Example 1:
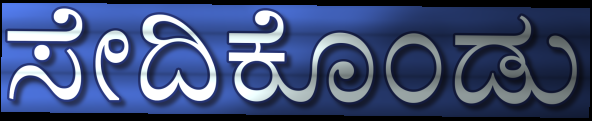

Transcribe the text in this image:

ಸೇದಿಕೊಂಡು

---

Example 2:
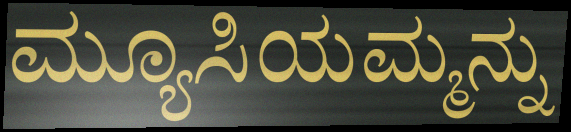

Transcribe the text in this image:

ಮ್ಯೂಸಿಯಮ್ಮನ್ನು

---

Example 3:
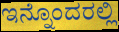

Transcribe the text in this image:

ಇನ್ನೊಂದರಲ್ಲಿ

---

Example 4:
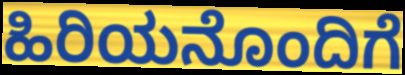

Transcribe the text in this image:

ಹಿರಿಯನೊಂದಿಗೆ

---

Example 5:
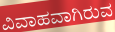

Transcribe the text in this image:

ವಿವಾಹವಾಗಿರುವ